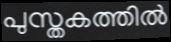
പുസ്തകത്തിൽ